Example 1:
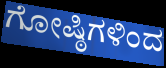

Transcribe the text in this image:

ಗೋಷ್ಠಿಗಳಿಂದ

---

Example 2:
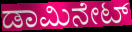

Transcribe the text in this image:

ಡಾಮಿನೇಟ್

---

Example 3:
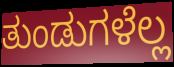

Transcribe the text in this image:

ತುಂಡುಗಳೆಲ್ಲ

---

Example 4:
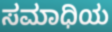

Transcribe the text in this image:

ಸಮಾಧಿಯ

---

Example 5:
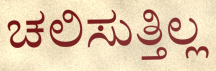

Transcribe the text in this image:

ಚಲಿಸುತ್ತಿಲ್ಲ